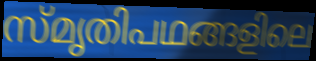
സ്മൃതിപഥങ്ങളിലെ